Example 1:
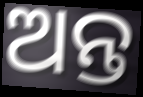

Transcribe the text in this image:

ଅନ୍ତ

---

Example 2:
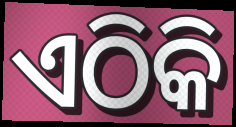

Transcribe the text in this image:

ଏଠିକି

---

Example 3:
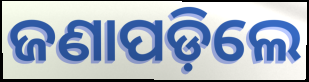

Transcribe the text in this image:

ଜଣାପଡ଼ିଲେ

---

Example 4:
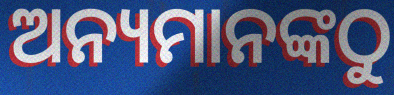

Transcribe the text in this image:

ଅନ୍ୟମାନଙ୍କଠୁ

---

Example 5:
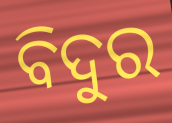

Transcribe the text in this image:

ବିଦୁର